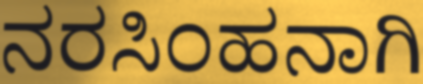
ನರಸಿಂಹನಾಗಿ